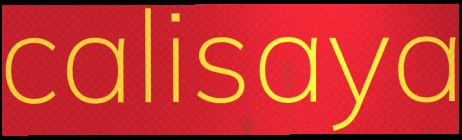
calisaya